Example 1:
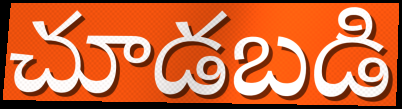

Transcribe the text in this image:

చూడబడి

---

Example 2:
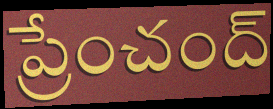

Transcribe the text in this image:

ప్రేంచంద్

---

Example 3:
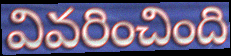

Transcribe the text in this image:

వివరించింది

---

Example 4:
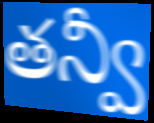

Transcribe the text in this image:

తన్వీ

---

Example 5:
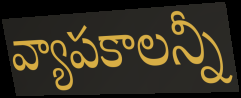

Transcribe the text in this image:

వ్యాపకాలన్నీ